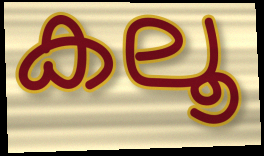
കലൂ